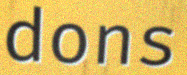
dons